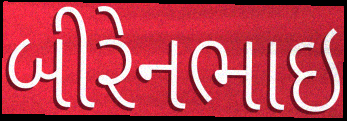
બીરેનભાઇ